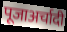
पूजाअर्चादी